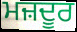
ਮਜ਼ਦੂਰ